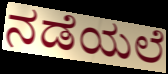
ನಡೆಯಲೆ